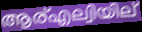
ആര്എല്വിയില്